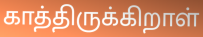
காத்திருக்கிறாள்